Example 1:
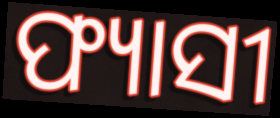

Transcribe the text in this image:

ଫ୍ୟାସୀ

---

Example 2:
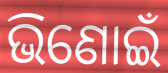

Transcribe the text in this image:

ଭିଣୋଇଁ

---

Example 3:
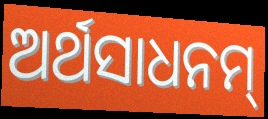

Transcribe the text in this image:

ଅର୍ଥସାଧନମ୍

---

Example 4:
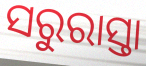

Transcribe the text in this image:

ସରୁରାସ୍ତା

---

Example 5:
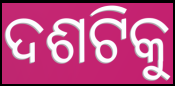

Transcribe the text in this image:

ଦଶଟିକୁ